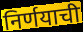
निर्णयाची